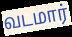
வடமார்